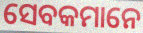
ସେବକମାନେ